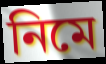
নিমে